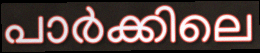
പാർക്കിലെ